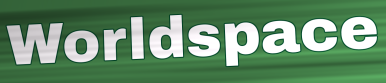
Worldspace